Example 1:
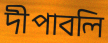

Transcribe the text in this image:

দীপাবলি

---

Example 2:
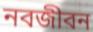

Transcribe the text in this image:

নবজীবন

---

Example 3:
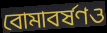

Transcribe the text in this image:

বোমাবর্ষণও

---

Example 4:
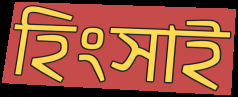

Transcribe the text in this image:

হিংসাই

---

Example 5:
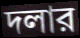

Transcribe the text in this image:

দলার